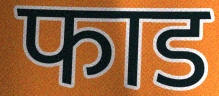
फाड